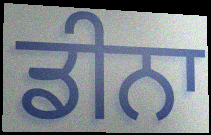
ਡੀਨਾ